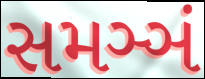
સમઞ્ઞં